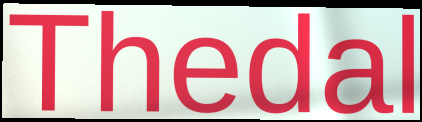
Thedal